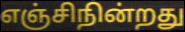
எஞ்சிநின்றது